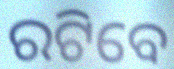
ରଟିବେ